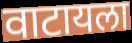
वाटायला